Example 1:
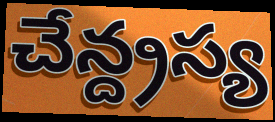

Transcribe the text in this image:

చేన్ద్రస్య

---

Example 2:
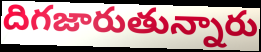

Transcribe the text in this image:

దిగజారుతున్నారు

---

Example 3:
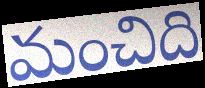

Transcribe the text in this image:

మంచిది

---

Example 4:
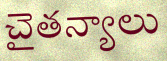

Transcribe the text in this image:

చైతన్యాలు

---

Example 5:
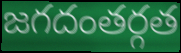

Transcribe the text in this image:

జగదంతర్గత